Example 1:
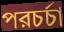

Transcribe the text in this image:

পরচর্চা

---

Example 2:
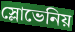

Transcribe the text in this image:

স্লোভেনিয়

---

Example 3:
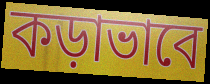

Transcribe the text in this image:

কড়াভাবে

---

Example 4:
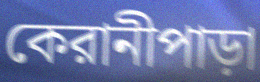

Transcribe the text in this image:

কেরানীপাড়া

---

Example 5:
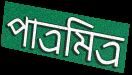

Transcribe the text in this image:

পাত্রমিত্র